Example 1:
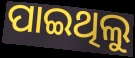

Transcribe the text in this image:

ପାଇଥିଲୁ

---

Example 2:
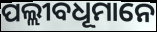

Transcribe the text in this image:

ପଲ୍ଲୀବଧୂମାନେ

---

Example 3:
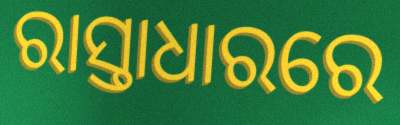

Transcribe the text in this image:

ରାସ୍ତାଧାରରେ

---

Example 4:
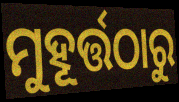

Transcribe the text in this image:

ମୁହୂର୍ତ୍ତଠାରୁ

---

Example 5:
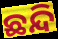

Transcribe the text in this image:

ଛନ୍ଦି